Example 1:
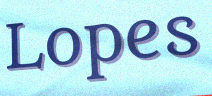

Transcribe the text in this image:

Lopes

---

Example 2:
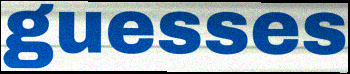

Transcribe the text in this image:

guesses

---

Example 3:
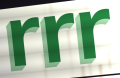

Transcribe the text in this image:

rrr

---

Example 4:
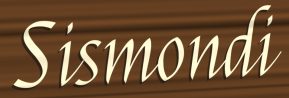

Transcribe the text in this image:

Sismondi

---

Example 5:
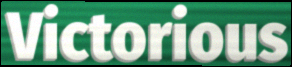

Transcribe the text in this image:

Victorious